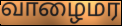
வாழைமர